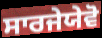
ਸਾਰਜੇਯੇਵੋ